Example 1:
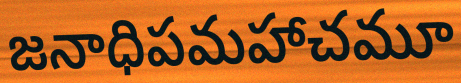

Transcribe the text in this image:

జనాధిపమహాచమూ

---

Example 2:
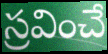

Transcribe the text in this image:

స్రవించే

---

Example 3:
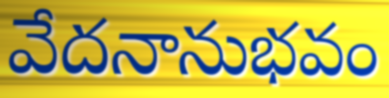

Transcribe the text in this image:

వేదనానుభవం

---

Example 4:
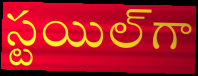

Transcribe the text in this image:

స్టయిల్‌గా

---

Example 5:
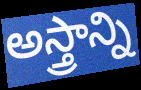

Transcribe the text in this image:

అస్త్రాన్ని